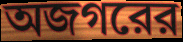
অজগরের